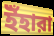
ইঁহারা